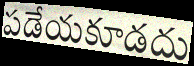
పడేయకూడదు